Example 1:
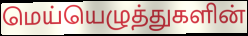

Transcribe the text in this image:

மெய்யெழுத்துகளின்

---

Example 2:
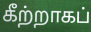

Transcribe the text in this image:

கீற்றாகப்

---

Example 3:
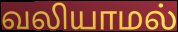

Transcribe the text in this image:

வலியாமல்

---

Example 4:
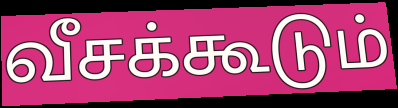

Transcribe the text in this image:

வீசக்கூடும்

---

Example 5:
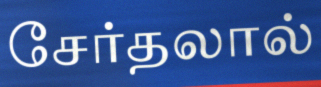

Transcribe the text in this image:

சேர்தலால்